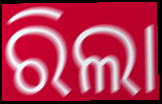
ରିଲା